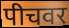
पीचवर